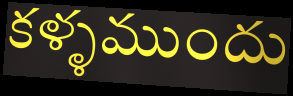
కళ్ళముందు